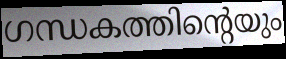
ഗന്ധകത്തിന്റെയും